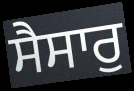
ਸੈਸਾਰੁ